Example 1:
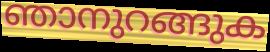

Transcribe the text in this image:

ഞാനുറങ്ങുക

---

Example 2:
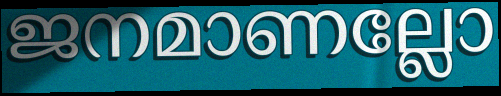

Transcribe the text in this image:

ജനമാണല്ലോ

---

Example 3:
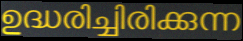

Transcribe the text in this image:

ഉദ്ധരിച്ചിരിക്കുന്ന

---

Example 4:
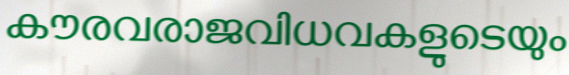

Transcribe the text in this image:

കൗരവരാജവിധവകളുടെയും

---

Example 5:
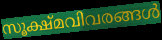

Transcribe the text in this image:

സൂക്ഷ്മവിവരങ്ങൾ